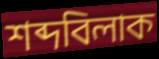
শব্দবিলাক